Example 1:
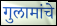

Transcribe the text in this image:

गुलामांचे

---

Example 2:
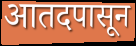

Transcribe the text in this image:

आतदपासून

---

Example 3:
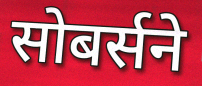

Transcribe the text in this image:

सोबर्सने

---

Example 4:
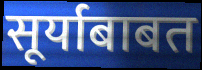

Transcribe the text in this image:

सूर्याबाबत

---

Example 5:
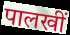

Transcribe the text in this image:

पालखीं